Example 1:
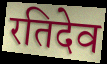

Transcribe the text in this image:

रतिदेव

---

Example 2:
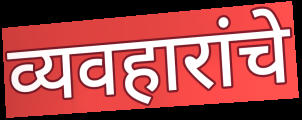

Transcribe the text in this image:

व्यवहारांचे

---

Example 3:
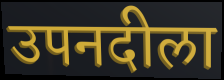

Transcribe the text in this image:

उपनदीला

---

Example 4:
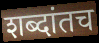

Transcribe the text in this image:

शब्दांतच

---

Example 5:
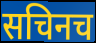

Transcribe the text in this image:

सचिनच